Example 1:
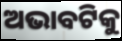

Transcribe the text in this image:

ଅଭାବଟିକୁ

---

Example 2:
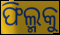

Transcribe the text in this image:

ଫିଲ୍ମକୁ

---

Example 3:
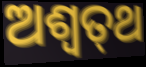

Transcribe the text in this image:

ଅଶ୍ଵତ୍‌ଥ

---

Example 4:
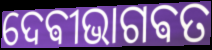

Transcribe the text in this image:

ଦେଵୀଭାଗଵତ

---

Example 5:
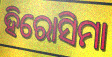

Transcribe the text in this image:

ହିରୋସିମା